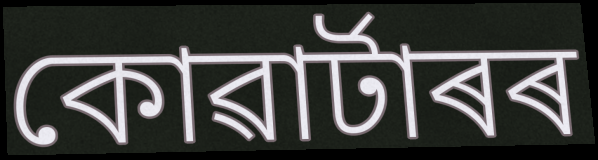
কোৱাৰ্টাৰৰ